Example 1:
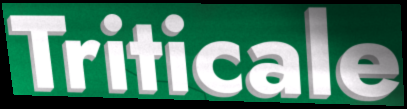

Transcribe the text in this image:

Triticale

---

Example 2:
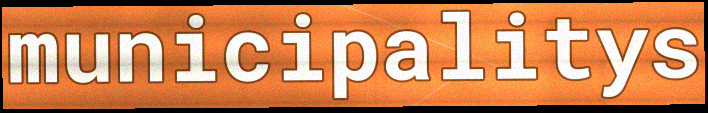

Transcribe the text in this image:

municipalitys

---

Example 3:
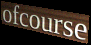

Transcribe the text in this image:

ofcourse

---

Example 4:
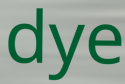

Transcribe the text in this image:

dye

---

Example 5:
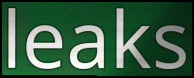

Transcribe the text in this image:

leaks